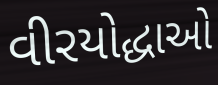
વીરયોદ્ધાઓ